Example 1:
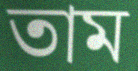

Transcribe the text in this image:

তাম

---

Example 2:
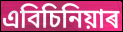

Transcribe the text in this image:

এবিচিনিয়াৰ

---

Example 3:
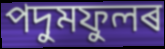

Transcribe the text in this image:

পদুমফুলৰ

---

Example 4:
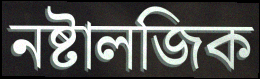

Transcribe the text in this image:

নষ্টালজিক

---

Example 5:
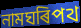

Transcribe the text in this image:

নামঘৰিপথ